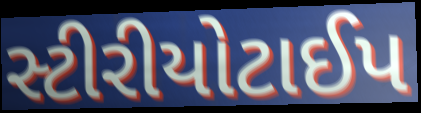
સ્ટીરીયોટાઈપ